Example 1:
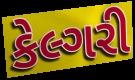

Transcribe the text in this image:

કેલ્ગરી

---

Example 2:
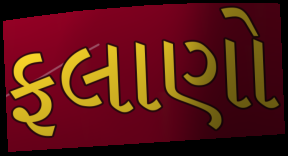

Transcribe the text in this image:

ફલાણો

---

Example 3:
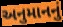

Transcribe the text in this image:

અનુમાનનું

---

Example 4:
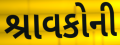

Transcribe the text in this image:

શ્રાવકોની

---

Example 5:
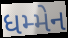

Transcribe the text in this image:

ધમ્મેન